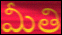
మీతి